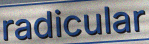
radicular